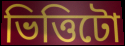
ভিত্তিটো